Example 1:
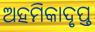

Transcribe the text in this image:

ଅହମିକାଦୃପ୍ତ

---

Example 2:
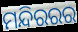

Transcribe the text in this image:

ମନ୍ଦିରରର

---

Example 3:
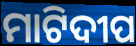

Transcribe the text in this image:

ମାଟିଦୀପ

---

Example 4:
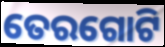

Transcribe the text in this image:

ତେରଗୋଟି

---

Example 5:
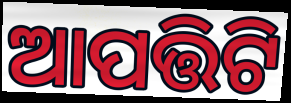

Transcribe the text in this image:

ଆପତ୍ତିଟି